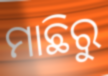
ମାଛିରୁ